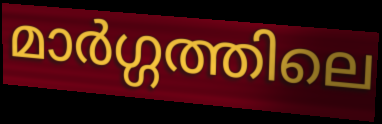
മാർഗ്ഗത്തിലെ